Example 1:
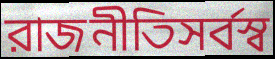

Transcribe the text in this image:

রাজনীতিসর্বস্ব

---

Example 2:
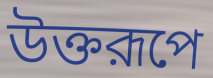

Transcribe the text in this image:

উক্তরূপে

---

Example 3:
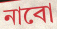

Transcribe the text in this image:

নাবো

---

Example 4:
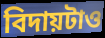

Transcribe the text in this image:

বিদায়টাও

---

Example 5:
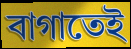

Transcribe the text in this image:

বাগাতেই